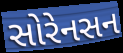
સોરેનસન